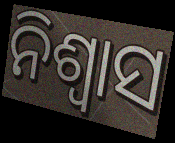
ନିଶ୍ଵାସ